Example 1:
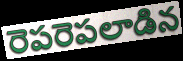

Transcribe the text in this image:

రెపరెపలాడిన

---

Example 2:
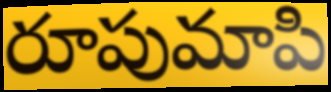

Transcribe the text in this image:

రూపుమాపి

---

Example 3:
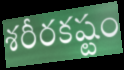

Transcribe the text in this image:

శరీరకష్టం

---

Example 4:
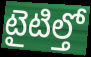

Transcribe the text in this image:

టైటిల్తో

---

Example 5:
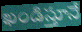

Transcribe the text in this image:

ఖండిస్తూనే